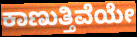
ಕಾಣುತ್ತಿವೆಯೇ